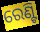
ରେଣ୍ଟି